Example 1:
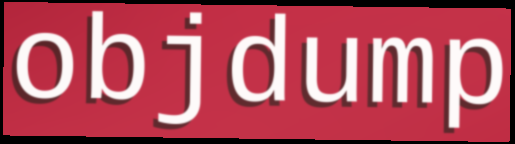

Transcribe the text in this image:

objdump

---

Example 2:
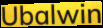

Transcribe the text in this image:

Ubalwin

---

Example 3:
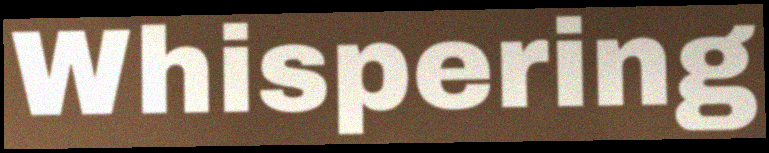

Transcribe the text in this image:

Whispering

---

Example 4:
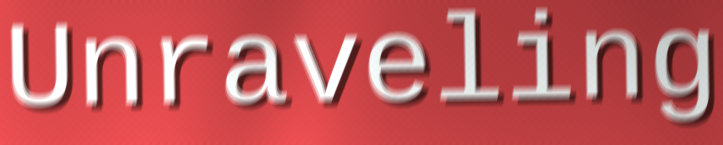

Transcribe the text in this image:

Unraveling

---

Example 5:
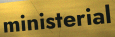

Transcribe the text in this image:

ministerial